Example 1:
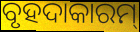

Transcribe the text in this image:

ବୃହଦାକାରମ୍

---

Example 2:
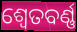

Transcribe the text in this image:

ଶ୍ୱେତବର୍ଣ୍ଣ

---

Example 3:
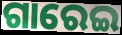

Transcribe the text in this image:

ଗାରେଇ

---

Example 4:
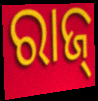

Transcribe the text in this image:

ରାଜ୍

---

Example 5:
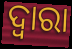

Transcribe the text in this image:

ଦ୍ଵାରା